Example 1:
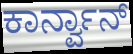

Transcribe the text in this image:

ಕಾರ್ನ್ವಾನ್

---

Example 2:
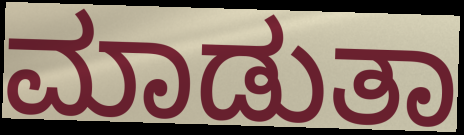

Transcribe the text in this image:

ಮಾಡುತಾ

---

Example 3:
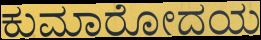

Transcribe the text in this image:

ಕುಮಾರೋದಯ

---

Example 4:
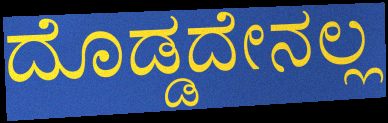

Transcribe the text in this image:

ದೊಡ್ಡದೇನಲ್ಲ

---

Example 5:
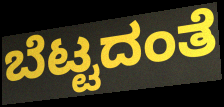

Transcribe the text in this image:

ಬೆಟ್ಟದಂತೆ